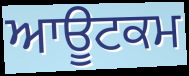
ਆਊਟਕਮ